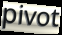
pivot